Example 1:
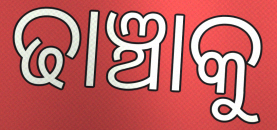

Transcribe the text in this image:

ଢାଞ୍ଚାକୁ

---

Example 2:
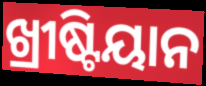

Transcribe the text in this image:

ଖ୍ରୀଷ୍ଟିୟାନ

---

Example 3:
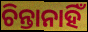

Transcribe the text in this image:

ଚିନ୍ତାନାହିଁ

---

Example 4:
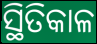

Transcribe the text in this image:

ସ୍ଥିତିକାଳ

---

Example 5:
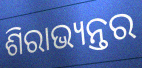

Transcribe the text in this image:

ଶିରାଭ୍ୟନ୍ତର